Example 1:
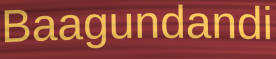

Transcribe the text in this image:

Baagundandi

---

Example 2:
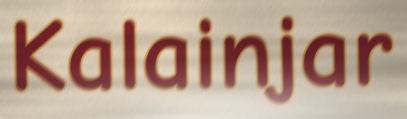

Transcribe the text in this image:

Kalainjar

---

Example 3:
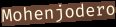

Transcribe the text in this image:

Mohenjodero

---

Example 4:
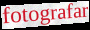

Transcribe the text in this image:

fotografar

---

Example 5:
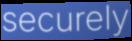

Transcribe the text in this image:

securely